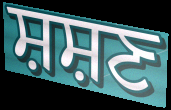
ਸ਼ਸ਼ਣ